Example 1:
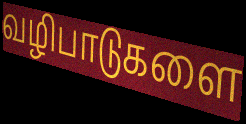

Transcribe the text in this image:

வழிபாடுகளை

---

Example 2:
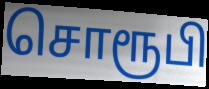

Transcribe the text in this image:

சொரூபி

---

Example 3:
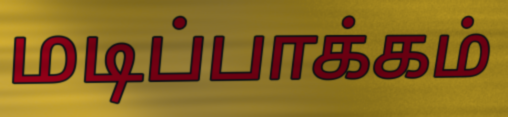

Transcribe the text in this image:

மடிப்பாக்கம்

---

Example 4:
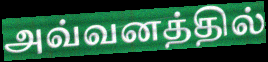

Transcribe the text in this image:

அவ்வனத்தில்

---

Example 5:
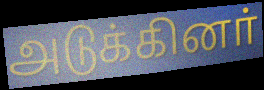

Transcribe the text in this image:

அடுக்கினர்